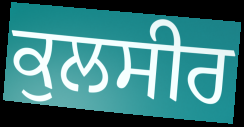
ਕੁਲਸੀਰ